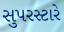
સુપરસ્ટારે